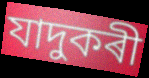
যাদুকৰী